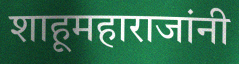
शाहूमहाराजांनी